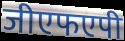
जीएफएपी